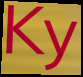
Ky